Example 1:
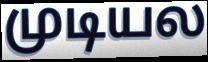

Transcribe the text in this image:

முடியல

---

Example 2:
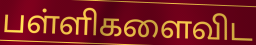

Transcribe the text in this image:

பள்ளிகளைவிட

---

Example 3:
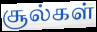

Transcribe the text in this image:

சூல்கள்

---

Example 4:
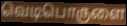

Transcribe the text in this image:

வெடிபொருளை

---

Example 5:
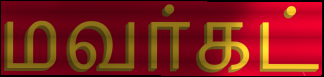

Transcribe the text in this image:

மவர்கட்